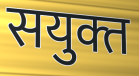
सयुक्‍त